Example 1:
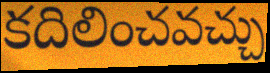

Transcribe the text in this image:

కదిలించవచ్చు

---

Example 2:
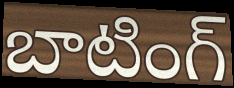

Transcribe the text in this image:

బాటింగ్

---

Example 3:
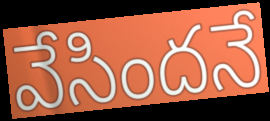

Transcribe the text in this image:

వేసిందనే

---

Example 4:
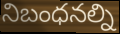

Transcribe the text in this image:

నిబంధనల్ని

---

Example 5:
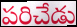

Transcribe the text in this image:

పరిచేడు